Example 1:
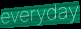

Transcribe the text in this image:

everyday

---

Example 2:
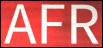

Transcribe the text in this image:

AFR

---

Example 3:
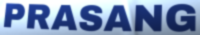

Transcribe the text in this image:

PRASANG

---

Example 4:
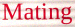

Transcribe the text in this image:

Mating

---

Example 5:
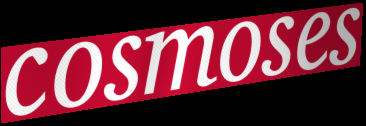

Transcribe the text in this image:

cosmoses